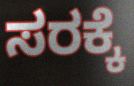
ಸರಕ್ಕೆ